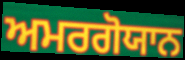
ਅਮਰਗੋਯਾਨ